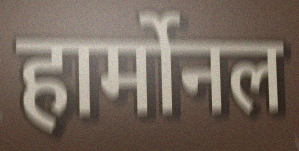
हार्मोनल